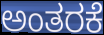
ಅಂತರಕೆ